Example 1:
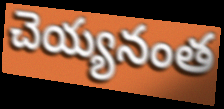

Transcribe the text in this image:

చెయ్యనంత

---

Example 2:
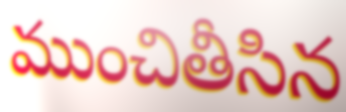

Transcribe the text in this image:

ముంచితీసిన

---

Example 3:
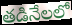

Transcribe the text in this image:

తడినేలలో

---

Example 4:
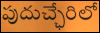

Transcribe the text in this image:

పుదుచ్ఛేరిలో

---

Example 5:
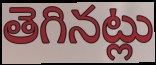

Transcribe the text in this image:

తెగినట్లు